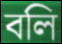
বলি